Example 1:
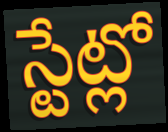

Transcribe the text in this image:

స్టేట్లో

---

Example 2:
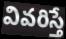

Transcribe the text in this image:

వివరిస్తే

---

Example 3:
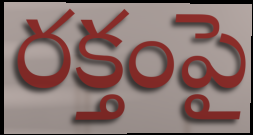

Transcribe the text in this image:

రక్తంపై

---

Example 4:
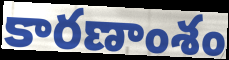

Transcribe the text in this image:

కారణాంశం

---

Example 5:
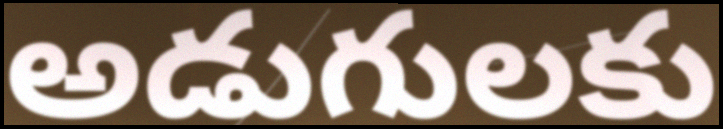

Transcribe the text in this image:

అడుగులకు